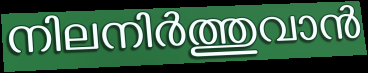
നിലനിർത്തുവാൻ